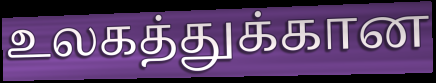
உலகத்துக்கான